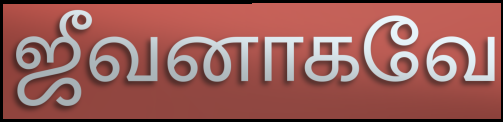
ஜீவனாகவே